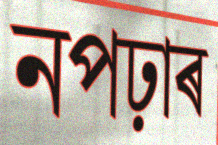
নপঢ়াৰ